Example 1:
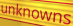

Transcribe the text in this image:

unknowns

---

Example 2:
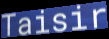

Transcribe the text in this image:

Taisir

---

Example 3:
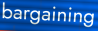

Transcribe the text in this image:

bargaining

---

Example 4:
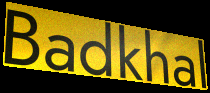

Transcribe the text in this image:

Badkhal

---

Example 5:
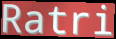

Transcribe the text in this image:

Ratri